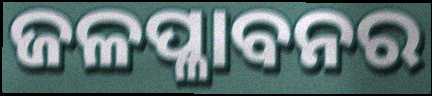
ଜଳପ୍ଳାବନର